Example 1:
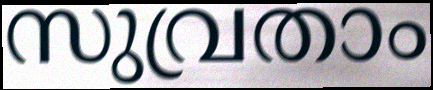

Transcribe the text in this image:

സുവ്രതാം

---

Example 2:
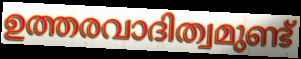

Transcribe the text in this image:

ഉത്തരവാദിത്വമുണ്ട്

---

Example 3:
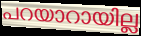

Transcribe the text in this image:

പറയാറായില്ല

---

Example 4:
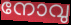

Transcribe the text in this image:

നോവു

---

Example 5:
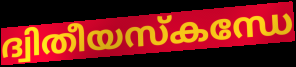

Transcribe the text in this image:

ദ്വിതീയസ്കന്ധേ